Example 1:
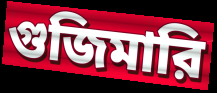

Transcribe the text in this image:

গুজিমারি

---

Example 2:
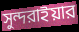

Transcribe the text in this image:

সুন্দরাইয়ার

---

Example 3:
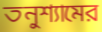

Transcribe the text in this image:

তনুশ্যামের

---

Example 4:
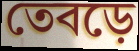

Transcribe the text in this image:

তেবড়ে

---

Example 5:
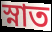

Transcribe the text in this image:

স্নাত